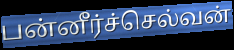
பன்னீர்ச்செல்வன்